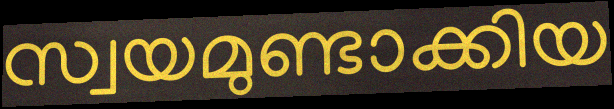
സ്വയമുണ്ടാക്കിയ